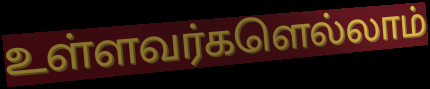
உள்ளவர்களெல்லாம்